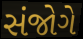
સંજોગે